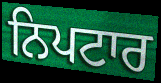
ਨਿਪਟਾਰ